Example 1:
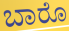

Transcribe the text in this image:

ಬಾರೊ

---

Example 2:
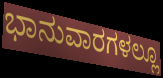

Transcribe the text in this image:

ಭಾನುವಾರಗಳಲ್ಲೂ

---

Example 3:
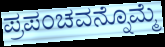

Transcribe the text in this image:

ಪ್ರಪಂಚವನ್ನೊಮ್ಮೆ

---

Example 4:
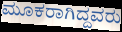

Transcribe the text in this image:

ಮೂಕರಾಗಿದ್ದವರು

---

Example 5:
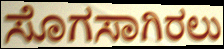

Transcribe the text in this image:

ಸೊಗಸಾಗಿರಲು